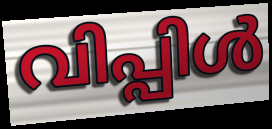
വിപ്പിൾ